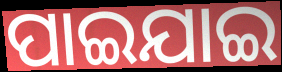
ପାଇଯାଇ